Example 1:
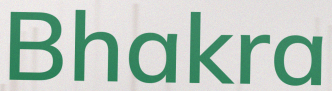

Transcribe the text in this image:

Bhakra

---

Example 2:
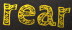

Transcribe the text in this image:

rear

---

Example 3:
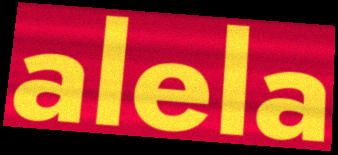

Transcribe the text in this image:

alela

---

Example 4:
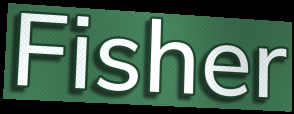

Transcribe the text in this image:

Fisher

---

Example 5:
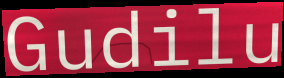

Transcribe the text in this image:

Gudilu